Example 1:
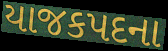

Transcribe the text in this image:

યાજકપદના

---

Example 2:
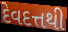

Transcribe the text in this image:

દેવદત્તથી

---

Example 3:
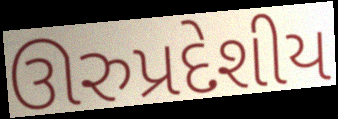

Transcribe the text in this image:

ઊરુપ્રદેશીય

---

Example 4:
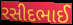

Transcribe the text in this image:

રસીદભાઈ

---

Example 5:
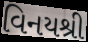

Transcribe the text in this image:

વિનયશ્રી